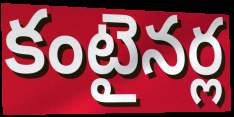
కంటైనర్ల